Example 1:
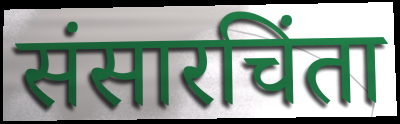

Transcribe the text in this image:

संसारचिंता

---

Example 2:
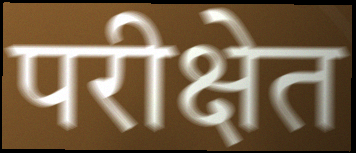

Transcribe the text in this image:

परीक्षेत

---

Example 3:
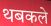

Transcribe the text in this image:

थबकले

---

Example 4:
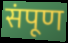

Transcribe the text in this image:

संपूण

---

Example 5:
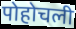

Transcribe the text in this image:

पोहोचली